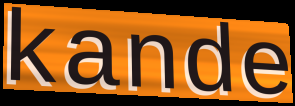
kande